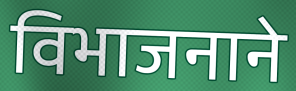
विभाजनाने